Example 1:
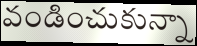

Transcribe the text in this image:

వండించుకున్నా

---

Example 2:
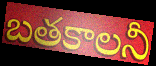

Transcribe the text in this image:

బతకాలనీ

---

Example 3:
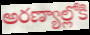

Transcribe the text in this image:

అరణ్యాల్లోకి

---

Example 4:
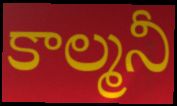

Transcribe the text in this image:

కాల్మనీ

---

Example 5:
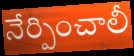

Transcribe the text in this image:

నేర్పించాలీ